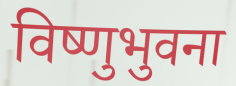
विष्णुभुवना